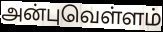
அன்புவெள்ளம்